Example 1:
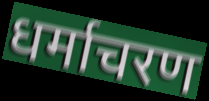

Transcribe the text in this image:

धर्माचरण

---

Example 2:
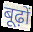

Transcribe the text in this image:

बूढ़ों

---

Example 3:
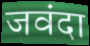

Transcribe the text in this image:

जवंदा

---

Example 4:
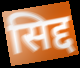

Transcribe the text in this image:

सिद्द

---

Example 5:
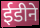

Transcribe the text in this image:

ईडीने